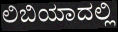
ಲಿಬಿಯಾದಲ್ಲಿ